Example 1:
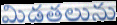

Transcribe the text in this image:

మిడతలును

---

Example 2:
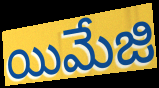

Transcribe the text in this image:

యిమేజి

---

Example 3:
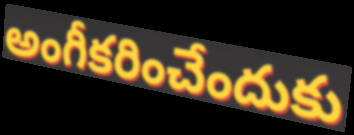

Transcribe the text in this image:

అంగీకరించేందుకు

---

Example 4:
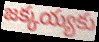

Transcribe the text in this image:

జక్కయ్యకు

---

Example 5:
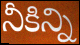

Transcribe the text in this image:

నీకిన్ని